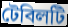
টেবিলটি